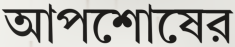
আপশোষের